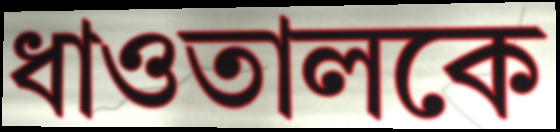
ধাওতালকে